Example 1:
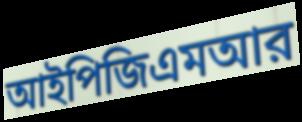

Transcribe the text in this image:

আইপিজিএমআর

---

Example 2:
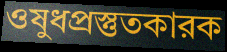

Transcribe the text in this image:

ওষুধপ্রস্তুতকারক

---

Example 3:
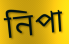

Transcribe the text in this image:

নিপা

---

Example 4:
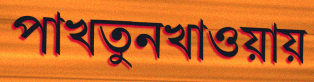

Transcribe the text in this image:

পাখতুনখাওয়ায়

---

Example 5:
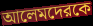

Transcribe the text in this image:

আলেমদেরকে